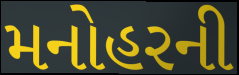
મનોહરની